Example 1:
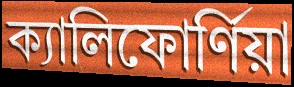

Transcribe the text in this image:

ক্যালিফোর্ণিয়া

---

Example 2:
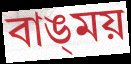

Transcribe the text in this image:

বাঙ্‌ময়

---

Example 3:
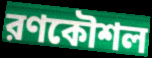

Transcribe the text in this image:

রণকৌশল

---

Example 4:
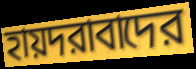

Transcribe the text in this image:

হায়দরাবাদের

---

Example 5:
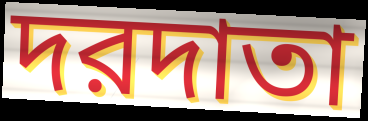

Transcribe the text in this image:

দরদাতা